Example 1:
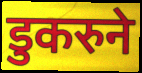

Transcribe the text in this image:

डुकरुने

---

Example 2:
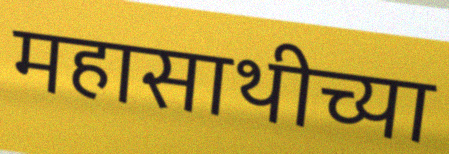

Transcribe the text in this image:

महासाथीच्या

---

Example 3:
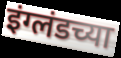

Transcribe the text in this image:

इंग्लंडच्या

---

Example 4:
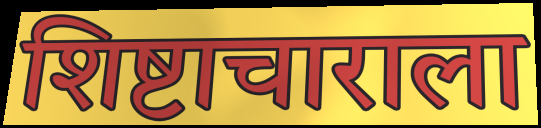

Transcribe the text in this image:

शिष्टाचाराला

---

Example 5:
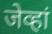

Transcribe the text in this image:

जेव्हां